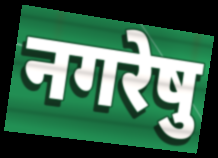
नगरेषु